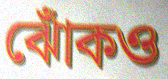
ঝোঁকও